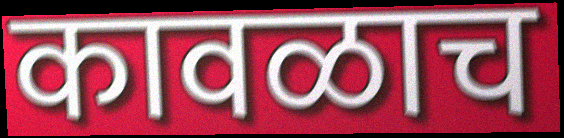
कावळाच